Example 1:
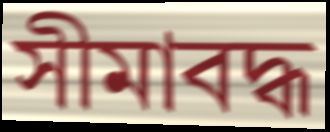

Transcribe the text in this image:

সীমাবদ্ধ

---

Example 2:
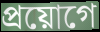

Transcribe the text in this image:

প্ৰয়োগে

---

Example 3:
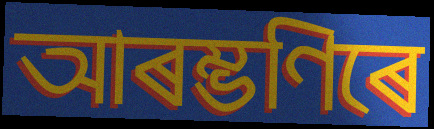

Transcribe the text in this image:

আৰম্ভণিৰে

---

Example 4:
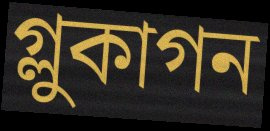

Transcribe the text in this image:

গ্লুকাগন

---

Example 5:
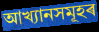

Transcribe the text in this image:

আখ্যানসমূহৰ